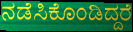
ನಡೆಸಿಕೊಂಡಿದ್ದರೆ